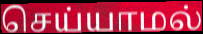
செய்யாமல்